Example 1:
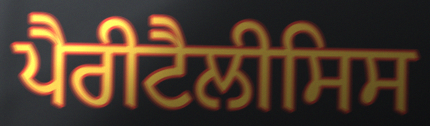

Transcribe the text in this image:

ਪੈਰੀਟੈਲੀਸਿਸ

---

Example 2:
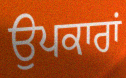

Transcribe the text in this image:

ਉਪਕਾਰਾਂ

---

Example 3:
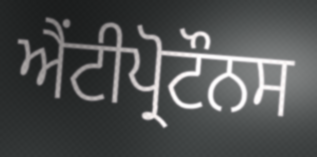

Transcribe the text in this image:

ਐਂਟੀਪ੍ਰੋਟੌਨਸ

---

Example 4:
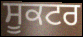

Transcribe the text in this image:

ਸੂਕਟਰ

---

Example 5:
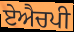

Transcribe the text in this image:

ਏਐਚਪੀ